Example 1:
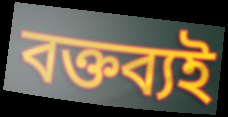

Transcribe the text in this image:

বক্তব্যই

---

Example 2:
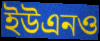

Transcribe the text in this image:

ইউএনও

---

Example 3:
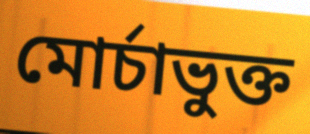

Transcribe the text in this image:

মোর্চাভুক্ত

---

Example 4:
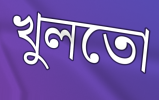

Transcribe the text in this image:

খুলতো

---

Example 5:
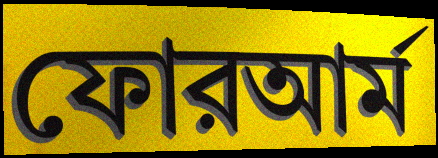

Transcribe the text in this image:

ফোরআর্ম